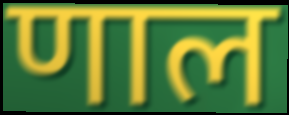
णाल